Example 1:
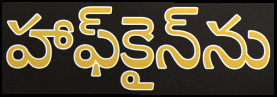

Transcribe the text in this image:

హాఫ్‌కైన్‌ను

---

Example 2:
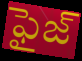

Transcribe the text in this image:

ఫైజ్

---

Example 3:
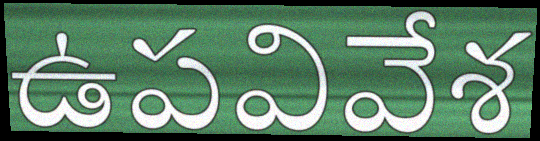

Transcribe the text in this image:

ఉపవివేశ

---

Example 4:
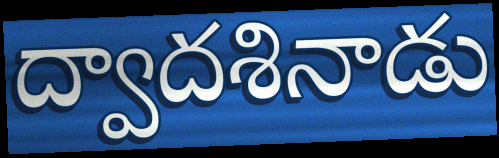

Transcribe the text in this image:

ద్వాదశినాడు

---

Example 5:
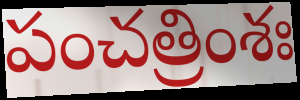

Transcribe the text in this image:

పంచత్రింశః